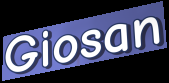
Giosan